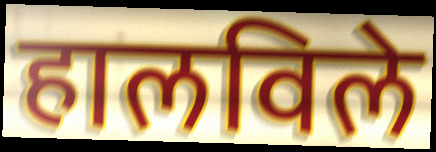
हालविले